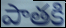
పాతకి